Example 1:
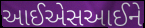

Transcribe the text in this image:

આઈએસઆઈને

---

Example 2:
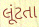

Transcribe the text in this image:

લૂંટતા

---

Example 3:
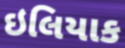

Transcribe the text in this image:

ઇલિયાક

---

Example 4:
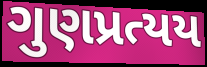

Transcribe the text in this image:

ગુણપ્રત્યય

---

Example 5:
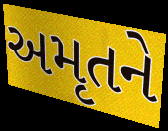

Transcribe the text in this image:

અમૃતને